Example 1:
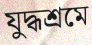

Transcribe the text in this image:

যুদ্ধশ্রমে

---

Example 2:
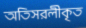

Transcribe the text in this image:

অতিসরলীকৃত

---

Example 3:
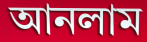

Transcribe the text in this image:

আনলাম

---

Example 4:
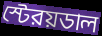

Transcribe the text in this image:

স্টেরয়ডাল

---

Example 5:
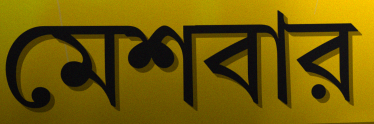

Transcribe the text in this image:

মেশবার